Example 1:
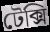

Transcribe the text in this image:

টেক্সি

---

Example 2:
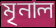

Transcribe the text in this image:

মৃনাল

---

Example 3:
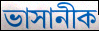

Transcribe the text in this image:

ভাসানীক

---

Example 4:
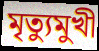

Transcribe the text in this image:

মৃত্যুমুখী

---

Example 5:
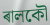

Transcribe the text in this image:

ৰালকৌ